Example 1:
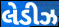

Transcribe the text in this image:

લેડીઝ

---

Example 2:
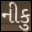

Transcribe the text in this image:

નીકુ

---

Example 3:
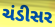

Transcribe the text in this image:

ચંડીસર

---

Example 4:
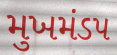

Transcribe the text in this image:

મુખમંડપ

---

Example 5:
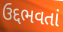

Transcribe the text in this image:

ઉદ્દભવતાં